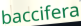
baccifera